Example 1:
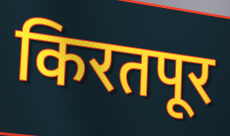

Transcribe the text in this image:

किरतपूर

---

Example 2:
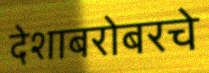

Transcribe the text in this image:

देशाबरोबरचे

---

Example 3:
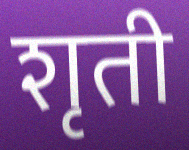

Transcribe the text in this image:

शृती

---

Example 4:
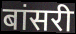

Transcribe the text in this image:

बांसरी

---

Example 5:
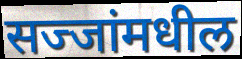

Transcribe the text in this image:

सज्जांमधील